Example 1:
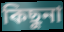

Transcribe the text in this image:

কিছুনা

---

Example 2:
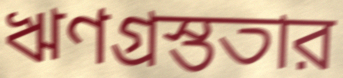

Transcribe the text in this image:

ঋণগ্রস্ততার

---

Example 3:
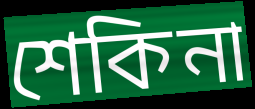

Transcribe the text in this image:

শেকিনা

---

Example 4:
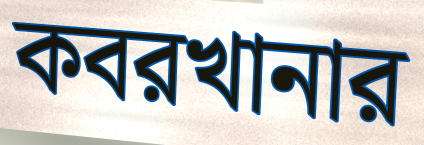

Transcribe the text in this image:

কবরখানার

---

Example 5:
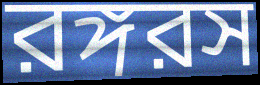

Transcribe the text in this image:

রঙ্গরস